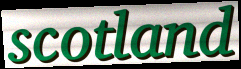
scotland